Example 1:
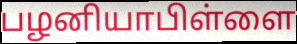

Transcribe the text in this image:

பழனியாபிள்ளை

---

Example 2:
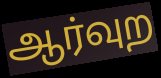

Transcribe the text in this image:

ஆர்வுற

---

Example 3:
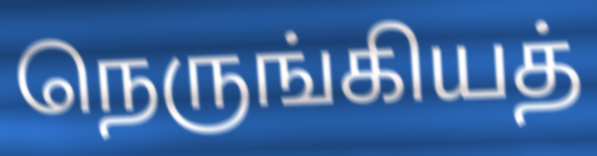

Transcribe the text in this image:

நெருங்கியத்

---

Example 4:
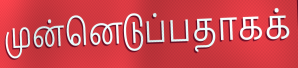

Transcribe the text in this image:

முன்னெடுப்பதாகக்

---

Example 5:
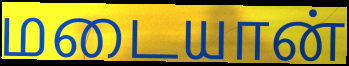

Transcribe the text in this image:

மடையான்